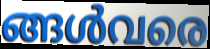
ങ്ങൾവരെ